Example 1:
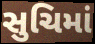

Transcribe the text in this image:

સુચિમાં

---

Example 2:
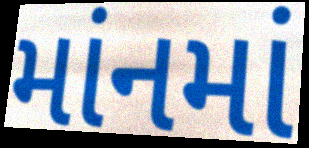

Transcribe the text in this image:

માંનમાં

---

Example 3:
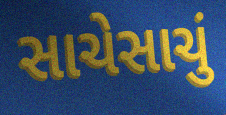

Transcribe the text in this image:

સાચેસાચું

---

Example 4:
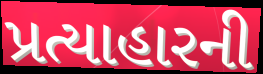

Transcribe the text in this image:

પ્રત્યાહારની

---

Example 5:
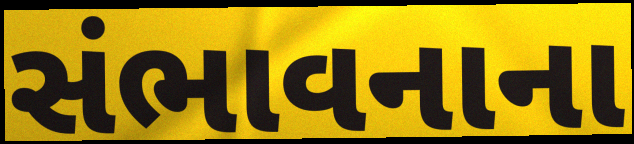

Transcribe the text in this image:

સંભાવનાના